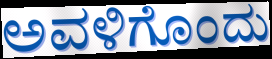
ಅವಳಿಗೊಂದು